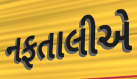
નફતાલીએ